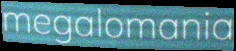
megalomania